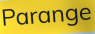
Parange